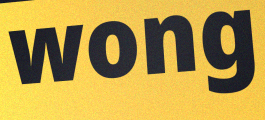
wong